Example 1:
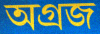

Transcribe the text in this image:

অগ্ৰজ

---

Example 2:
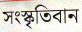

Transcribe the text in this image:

সংস্কৃতিবান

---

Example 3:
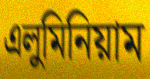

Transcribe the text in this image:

এলুমিনিয়াম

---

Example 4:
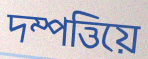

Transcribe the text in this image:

দম্পত্তিয়ে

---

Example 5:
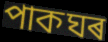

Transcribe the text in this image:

পাকঘৰ